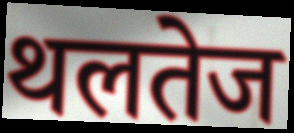
थलतेज